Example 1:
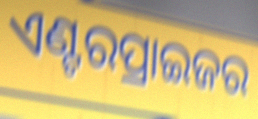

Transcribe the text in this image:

ଏଣ୍ଟରପ୍ରାଇଜର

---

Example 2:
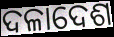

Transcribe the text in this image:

ଦଳାଦେଶ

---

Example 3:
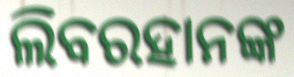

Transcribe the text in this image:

ଲିବରହାନଙ୍କ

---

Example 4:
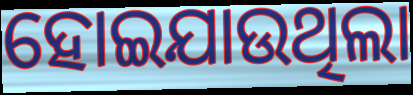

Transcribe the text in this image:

ହୋଇଯାଉଥିଲା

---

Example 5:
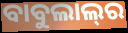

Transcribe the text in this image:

ବାବୁଲାଲ୍‍ର